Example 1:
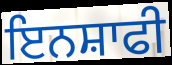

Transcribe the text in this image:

ਇਨਸ਼ਾਫੀ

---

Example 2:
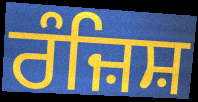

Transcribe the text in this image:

ਰੰਜ਼ਿਸ਼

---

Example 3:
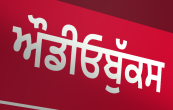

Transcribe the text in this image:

ਔਡੀਓਬੁੱਕਸ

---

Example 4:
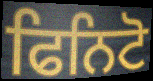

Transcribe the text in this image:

ਫਿਨਿਟੋ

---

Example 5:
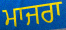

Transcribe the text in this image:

ਮਾਜਰਾ